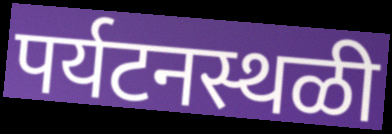
पर्यटनस्थळी